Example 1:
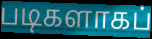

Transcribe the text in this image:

படிகளாகப்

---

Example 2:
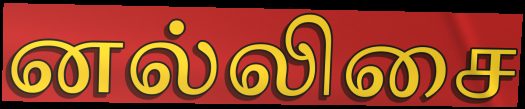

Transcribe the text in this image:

னல்லிசை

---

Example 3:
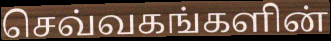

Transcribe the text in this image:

செவ்வகங்களின்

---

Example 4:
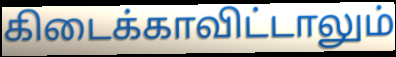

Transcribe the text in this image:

கிடைக்காவிட்டாலும்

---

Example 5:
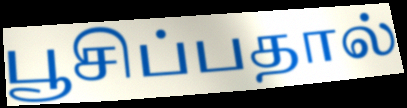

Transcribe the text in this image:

பூசிப்பதால்